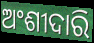
ଅଂଶୀଦାରି